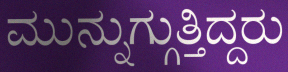
ಮುನ್ನುಗ್ಗುತ್ತಿದ್ದರು